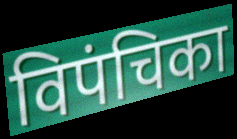
विपंचिका